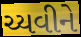
ચ્યવીને